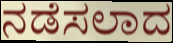
ನಡೆಸಲಾದ